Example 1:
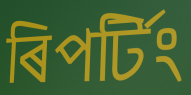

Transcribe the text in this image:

ৰিপৰ্টিং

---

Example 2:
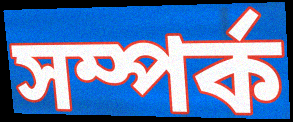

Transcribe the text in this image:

সম্পৰ্ক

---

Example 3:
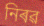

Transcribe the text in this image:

নিৰৱ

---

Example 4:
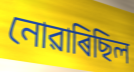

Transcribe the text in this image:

নোৱাৰিছিল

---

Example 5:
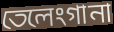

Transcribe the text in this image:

তেলেংগানা